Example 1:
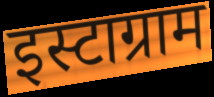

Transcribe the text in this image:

इस्टाग्राम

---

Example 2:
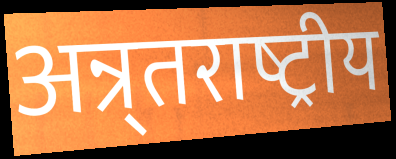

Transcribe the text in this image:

अन्र्तराष्ट्रीय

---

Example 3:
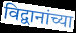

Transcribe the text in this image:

विद्वानांच्या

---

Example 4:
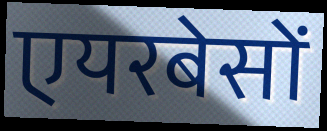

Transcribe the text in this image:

एयरबेसों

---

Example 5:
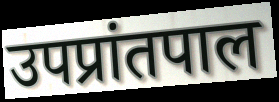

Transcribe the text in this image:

उपप्रांतपाल